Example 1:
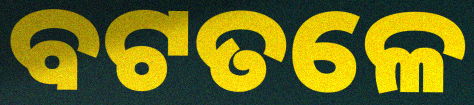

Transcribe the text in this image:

ବଟତଳେ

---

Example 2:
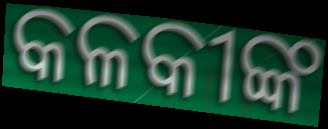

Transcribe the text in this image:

କଳକୀଙ୍କ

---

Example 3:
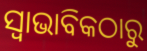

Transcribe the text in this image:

ସ୍ୱାଭାବିକଠାରୁ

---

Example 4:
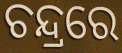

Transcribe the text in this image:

ଚନ୍ଦ୍ରରେ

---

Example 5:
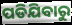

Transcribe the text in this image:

ପଡିଯିବାରୁ